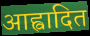
आह्वादित